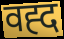
वह्द